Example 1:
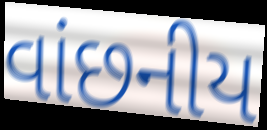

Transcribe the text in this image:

વાંછનીય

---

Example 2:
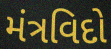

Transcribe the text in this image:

મંત્રવિદો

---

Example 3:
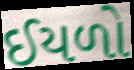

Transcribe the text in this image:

ઈયળો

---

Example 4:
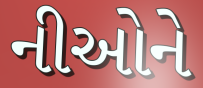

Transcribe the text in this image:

નીઓને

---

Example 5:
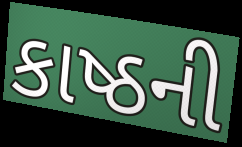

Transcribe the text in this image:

કાષ્ઠની